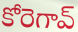
కోరెగావ్